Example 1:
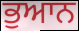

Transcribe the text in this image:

ਭੁਆਨ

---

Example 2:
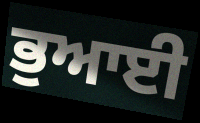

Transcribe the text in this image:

ਭੁਆਈ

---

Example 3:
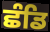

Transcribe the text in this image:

ਛੰਡਿ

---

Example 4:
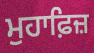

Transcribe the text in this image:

ਮੁਹਾਫ਼ਿਜ਼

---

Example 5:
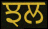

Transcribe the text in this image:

ਝਲ